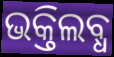
ଭକ୍ତିଲବ୍ଧ